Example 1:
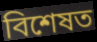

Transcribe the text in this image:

বিশেষত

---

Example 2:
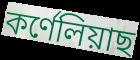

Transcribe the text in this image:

কৰ্ণেলিয়াছ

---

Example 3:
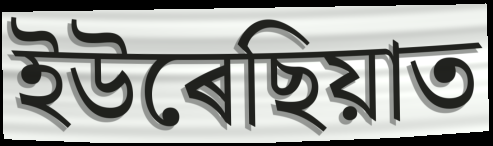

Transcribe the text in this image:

ইউৰেছিয়াত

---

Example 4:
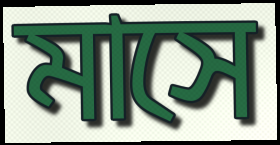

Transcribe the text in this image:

মাসে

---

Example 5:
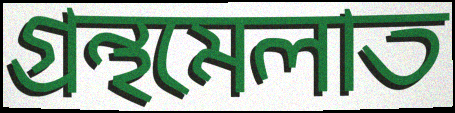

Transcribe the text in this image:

গ্ৰন্থমেলাত